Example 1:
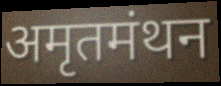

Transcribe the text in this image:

अमृतमंथन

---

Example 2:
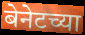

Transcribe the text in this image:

बेनेटच्या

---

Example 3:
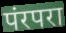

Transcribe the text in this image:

पंरपरा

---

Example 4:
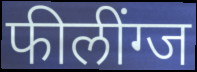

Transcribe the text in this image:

फीलींग्ज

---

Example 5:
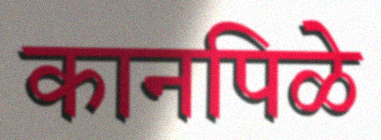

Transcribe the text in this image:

कानपिळे